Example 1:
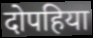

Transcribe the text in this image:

दोपहिया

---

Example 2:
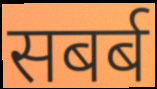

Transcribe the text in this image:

सबर्ब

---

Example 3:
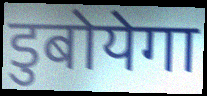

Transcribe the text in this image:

डुबोयेगा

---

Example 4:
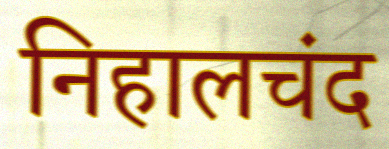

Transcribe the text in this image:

निहालचंद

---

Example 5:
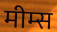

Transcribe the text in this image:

मीम्‍स